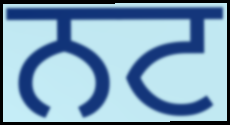
ਨਟ